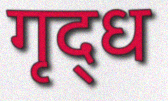
गृद्ध